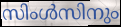
സിംൾസിനും